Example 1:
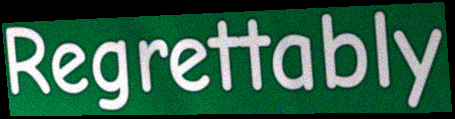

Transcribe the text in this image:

Regrettably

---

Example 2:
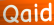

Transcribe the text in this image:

Qaid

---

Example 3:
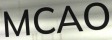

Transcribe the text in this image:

MCAO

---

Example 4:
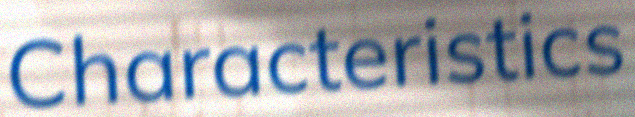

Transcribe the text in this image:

Characteristics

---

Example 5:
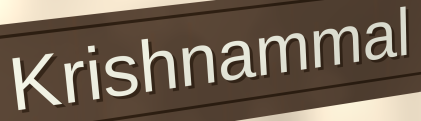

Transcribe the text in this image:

Krishnammal